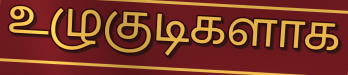
உழுகுடிகளாக